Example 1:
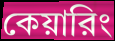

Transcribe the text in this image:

কেয়ারিং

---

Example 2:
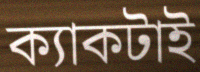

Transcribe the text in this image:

ক্যাকটাই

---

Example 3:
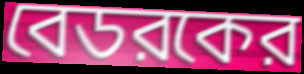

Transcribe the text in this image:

বেডরকের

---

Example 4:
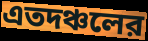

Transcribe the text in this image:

এতদঞ্চলের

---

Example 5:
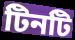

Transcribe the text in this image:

টিনটি